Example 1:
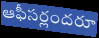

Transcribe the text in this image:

ఆఫీసర్లందరూ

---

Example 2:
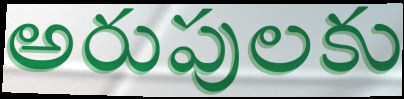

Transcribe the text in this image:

అరుపులకు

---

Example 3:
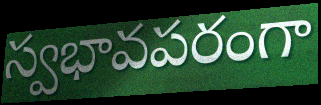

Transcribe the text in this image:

స్వభావపరంగా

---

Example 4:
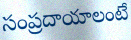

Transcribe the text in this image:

సంప్రదాయాలంటే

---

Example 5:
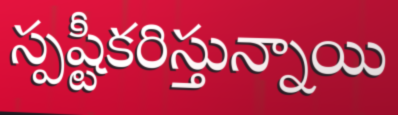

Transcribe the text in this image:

స్పష్టీకరిస్తున్నాయి